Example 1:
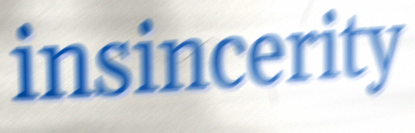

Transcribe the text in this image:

insincerity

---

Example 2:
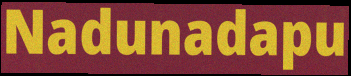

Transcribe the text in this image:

Nadunadapu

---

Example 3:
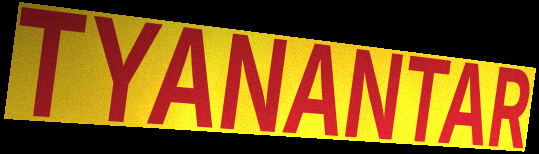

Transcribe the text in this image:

TYANANTAR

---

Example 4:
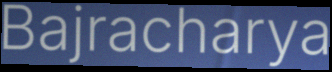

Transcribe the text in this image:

Bajracharya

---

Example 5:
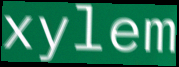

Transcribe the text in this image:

xylem